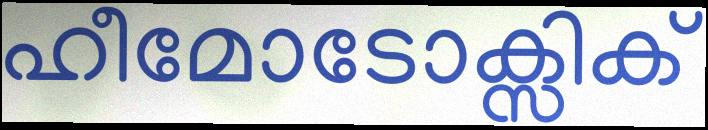
ഹീമോടോക്സിക്